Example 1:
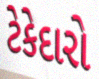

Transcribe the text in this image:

ટેકેદારો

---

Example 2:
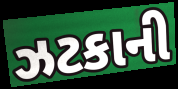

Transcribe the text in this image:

ઝટકાની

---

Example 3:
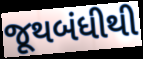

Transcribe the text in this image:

જૂથબંધીથી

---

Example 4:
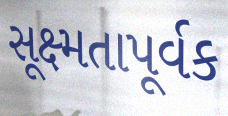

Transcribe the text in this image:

સૂક્ષ્મતાપૂર્વક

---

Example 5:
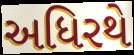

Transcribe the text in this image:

અધિરથે